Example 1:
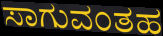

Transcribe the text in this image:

ಸಾಗುವಂತಹ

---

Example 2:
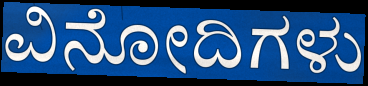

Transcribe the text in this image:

ವಿನೋದಿಗಳು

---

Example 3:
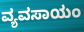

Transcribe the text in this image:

ವ್ಯವಸಾಯಂ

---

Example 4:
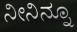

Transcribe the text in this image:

ನೀನಿನ್ನೂ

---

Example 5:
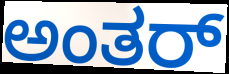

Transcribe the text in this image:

ಅಂತರ್